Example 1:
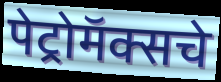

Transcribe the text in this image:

पेट्रोमॅक्सचे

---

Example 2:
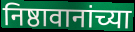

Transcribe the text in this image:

निष्ठावानांच्या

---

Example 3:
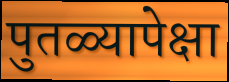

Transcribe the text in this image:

पुतळ्यापेक्षा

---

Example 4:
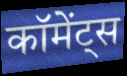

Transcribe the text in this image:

कॉमेंट्स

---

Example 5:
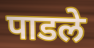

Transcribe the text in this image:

पाडले